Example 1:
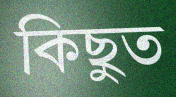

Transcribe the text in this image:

কিছুত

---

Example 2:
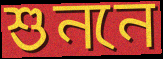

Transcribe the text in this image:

শুননে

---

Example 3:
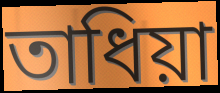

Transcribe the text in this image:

তাধিয়া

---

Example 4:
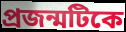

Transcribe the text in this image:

প্রজন্মটিকে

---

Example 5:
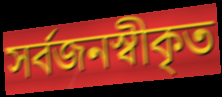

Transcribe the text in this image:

সর্বজনস্বীকৃত